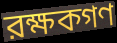
রক্ষকগণ